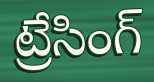
ట్రేసింగ్